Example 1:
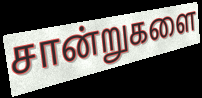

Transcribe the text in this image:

சான்றுகளை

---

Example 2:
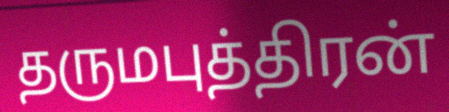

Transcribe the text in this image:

தருமபுத்திரன்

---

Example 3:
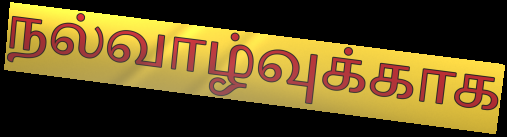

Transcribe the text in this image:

நல்வாழ்வுக்காக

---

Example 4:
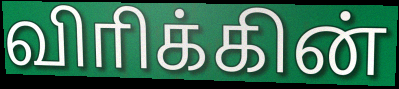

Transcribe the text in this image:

விரிக்கின்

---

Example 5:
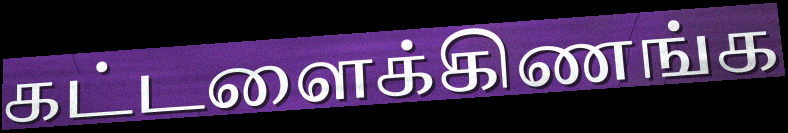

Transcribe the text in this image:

கட்டளைக்கிணங்க